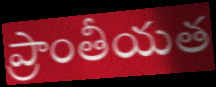
ప్రాంతీయత